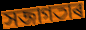
সজাগতাৰ